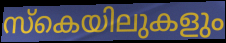
സ്കെയിലുകളും